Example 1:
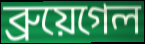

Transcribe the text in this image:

ব্রুয়েগেল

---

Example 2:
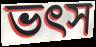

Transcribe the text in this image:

ভৎস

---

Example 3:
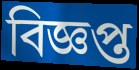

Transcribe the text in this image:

বিজ্ঞপ্ত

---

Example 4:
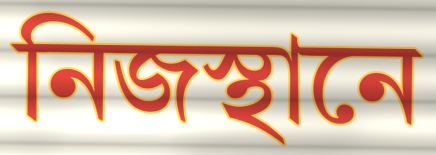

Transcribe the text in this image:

নিজস্থানে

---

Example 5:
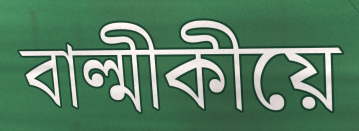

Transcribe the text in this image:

বাল্মীকীয়ে